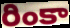
రింకా